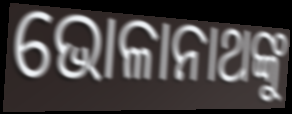
ଭୋଳାନାଥଙ୍କୁ